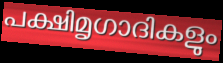
പക്ഷിമൃഗാദികളും